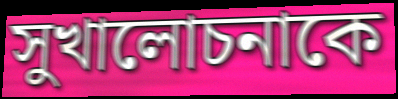
সুখালোচনাকে